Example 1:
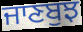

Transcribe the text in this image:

ਜਾਣਬੁਝ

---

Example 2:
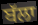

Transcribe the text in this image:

ਬੱਲਾ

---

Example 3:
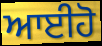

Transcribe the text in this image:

ਆਈਹੋ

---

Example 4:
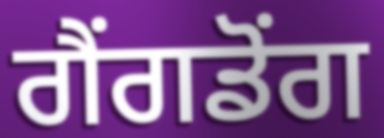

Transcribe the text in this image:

ਗੈਂਗਡੋਂਗ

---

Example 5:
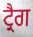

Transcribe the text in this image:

ਟ੍ਰੈਗ